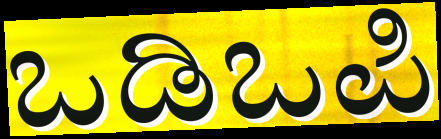
ಒಡಿಒಪಿ